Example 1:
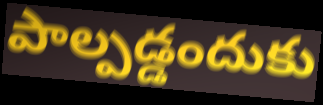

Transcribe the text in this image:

పాల్పడ్డందుకు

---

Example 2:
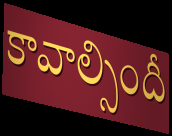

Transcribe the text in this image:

కావాల్సిందీ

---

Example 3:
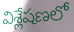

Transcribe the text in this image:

విశ్లేషణలో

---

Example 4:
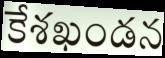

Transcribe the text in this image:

కేశఖండన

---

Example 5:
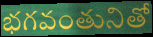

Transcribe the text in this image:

భగవంతునితో